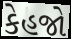
કેહજો